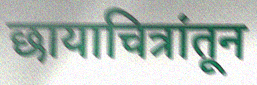
छायाचित्रांतून